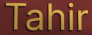
Tahir